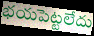
భయపెట్టలేదు